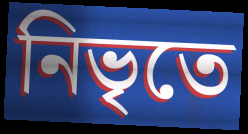
নিভৃতে